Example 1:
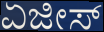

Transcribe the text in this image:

ಏಜೀಸ್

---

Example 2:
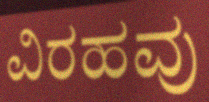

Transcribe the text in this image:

ವಿರಹವು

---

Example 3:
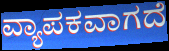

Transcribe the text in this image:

ವ್ಯಾಪಕವಾಗದೆ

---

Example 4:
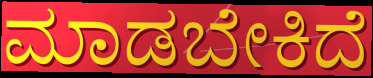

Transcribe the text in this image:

ಮಾಡಬೇಕಿದೆ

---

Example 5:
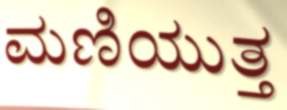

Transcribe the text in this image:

ಮಣಿಯುತ್ತ